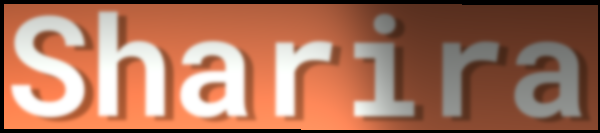
Sharira